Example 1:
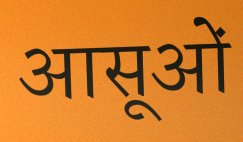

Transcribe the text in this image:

आसूओं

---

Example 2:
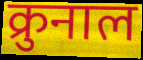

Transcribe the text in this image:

क्रुनाल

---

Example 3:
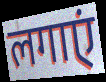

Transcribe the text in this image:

लगाएं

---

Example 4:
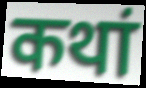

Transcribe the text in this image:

कथां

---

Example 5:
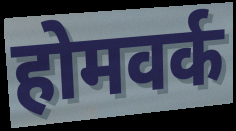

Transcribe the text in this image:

होमवर्क